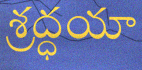
శ్రద్ధయా